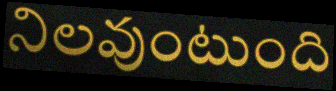
నిలవుంటుంది